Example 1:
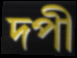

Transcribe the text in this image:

দপী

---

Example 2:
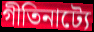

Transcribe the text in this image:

গীতিনাট্যে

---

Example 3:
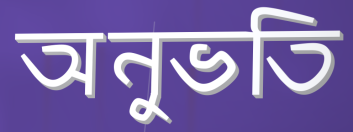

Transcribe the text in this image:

অনুভতি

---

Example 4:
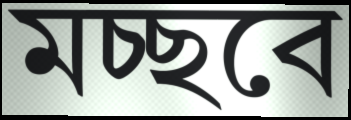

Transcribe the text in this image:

মচ্ছবে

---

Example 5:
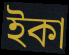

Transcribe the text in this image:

ইকা